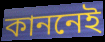
কাননেই